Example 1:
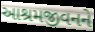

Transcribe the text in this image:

આશ્રમજીવનને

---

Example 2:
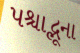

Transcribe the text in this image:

પશ્ચાદ્ભૂના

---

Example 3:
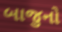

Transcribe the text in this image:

બાજુનો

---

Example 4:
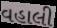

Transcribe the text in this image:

વહાલી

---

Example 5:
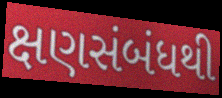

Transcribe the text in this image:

ક્ષણસંબંધથી